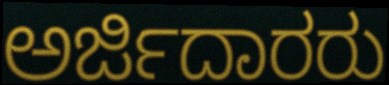
ಅರ್ಜಿದಾರರು